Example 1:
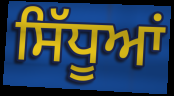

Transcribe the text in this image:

ਸਿੱਧੂਆਂ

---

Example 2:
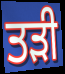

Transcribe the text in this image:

ਤੜੀ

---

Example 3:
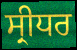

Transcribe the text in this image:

ਸ੍ਰੀਧਰ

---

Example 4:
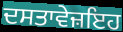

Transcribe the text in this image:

ਦਸਤਾਵੇਜ਼ਇਹ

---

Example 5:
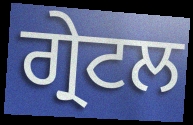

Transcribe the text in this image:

ਗ੍ਰੇਟਲ